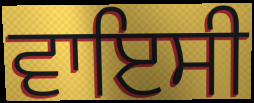
ਵਾਇਸੀ